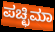
ಪಚ್ಛಿಮಾ